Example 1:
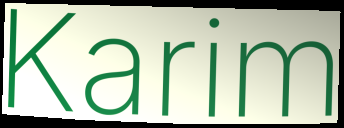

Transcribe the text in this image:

Karim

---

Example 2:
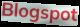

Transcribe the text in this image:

Blogspot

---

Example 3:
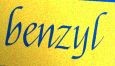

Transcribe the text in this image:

benzyl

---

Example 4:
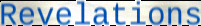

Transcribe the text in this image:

Revelations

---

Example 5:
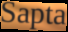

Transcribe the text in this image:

Sapta